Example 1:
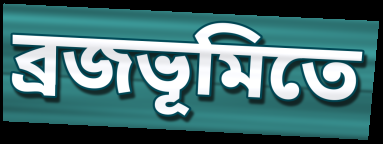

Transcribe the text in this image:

ব্রজভূমিতে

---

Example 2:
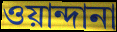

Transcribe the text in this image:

ওয়ান্দানা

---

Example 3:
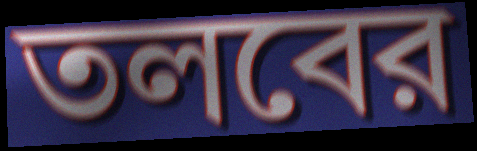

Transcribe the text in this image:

তলবের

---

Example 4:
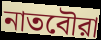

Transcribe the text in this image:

নাতবৌরা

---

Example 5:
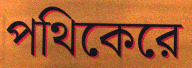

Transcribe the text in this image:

পথিকেরে